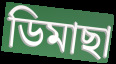
ডিমাছা